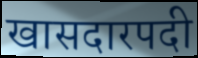
खासदारपदी